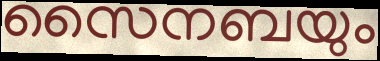
സൈനബയും